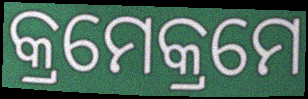
କ୍ରମେକ୍ରମେ